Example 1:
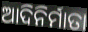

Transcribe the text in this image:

ଆଦିନିର୍ମାତା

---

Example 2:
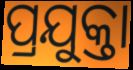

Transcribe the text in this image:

ପ୍ରଯୁକ୍ତା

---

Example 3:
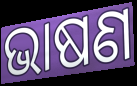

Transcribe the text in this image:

ଭାଷଣ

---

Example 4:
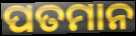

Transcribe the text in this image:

ପତମାନ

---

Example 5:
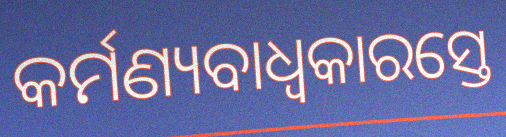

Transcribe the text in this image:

କର୍ମଣ୍ୟବାଧ୍ୱକାରସ୍ତେ